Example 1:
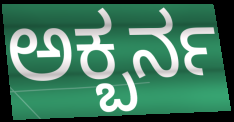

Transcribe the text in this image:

ಅಕ್ಬರ್ನ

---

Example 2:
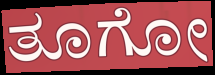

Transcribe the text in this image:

ತೂಗೋ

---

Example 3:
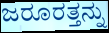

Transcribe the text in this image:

ಜರೂರತ್ತನ್ನು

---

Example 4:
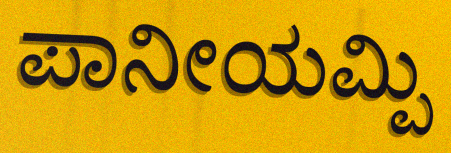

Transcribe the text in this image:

ಪಾನೀಯಮ್ಪಿ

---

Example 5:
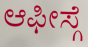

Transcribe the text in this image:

ಆಫೀಸ್ಗೆ